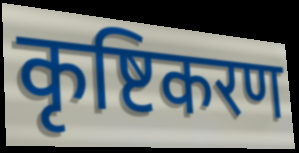
कृष्टिकरण